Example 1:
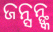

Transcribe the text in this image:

ଜନ୍ସନ୍ଙ୍କ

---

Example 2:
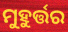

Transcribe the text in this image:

ମୁହୁର୍ତ୍ତର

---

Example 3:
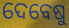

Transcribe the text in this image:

ଦେବେଷୁ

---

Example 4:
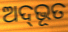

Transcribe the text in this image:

ଅଦ୍‍ଭୂତ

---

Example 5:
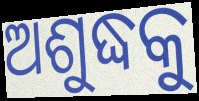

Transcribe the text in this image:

ଅଶୁଦ୍ଧକୁ